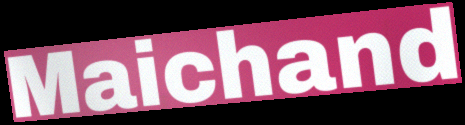
Maichand